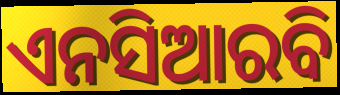
ଏନସିଆରବି